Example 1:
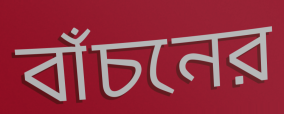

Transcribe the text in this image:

বাঁচনের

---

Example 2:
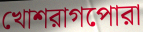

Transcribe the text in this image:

খোশরাগপোরা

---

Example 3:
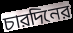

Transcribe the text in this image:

চারদিনের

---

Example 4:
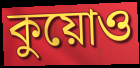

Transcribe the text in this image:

কুয়োও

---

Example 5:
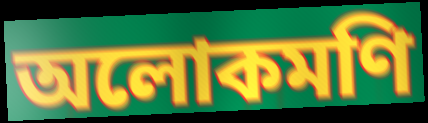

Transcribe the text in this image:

অলোকমণি